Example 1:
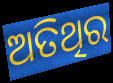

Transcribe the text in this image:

ଅତିଥିର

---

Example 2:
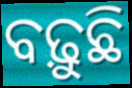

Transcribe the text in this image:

ବଢ଼ୁଛି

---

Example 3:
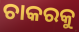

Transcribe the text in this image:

ଚାକରକୁ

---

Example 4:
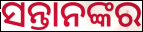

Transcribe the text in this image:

ସନ୍ତାନଙ୍କର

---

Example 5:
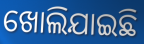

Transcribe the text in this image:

ଖୋଲିଯାଇଛି